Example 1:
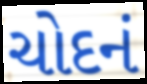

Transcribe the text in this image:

ચોદનં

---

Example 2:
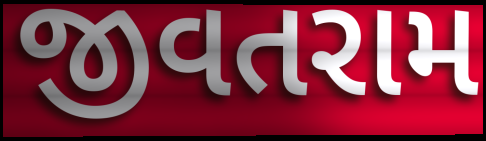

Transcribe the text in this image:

જીવતરામ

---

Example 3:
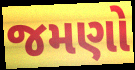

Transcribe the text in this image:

જમણો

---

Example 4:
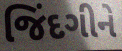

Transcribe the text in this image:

જિંદગીને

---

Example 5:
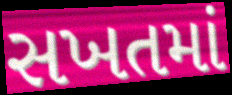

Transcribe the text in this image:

સખતમાં